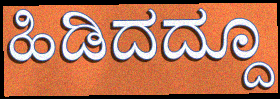
ಹಿಡಿದದ್ದೂ